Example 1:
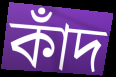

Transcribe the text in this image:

কাঁদ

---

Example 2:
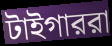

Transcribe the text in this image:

টাইগাররা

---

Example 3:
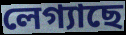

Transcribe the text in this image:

লেগ্যাছে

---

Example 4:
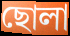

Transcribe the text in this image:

ছোলা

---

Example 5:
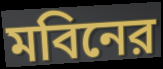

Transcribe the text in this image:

মবিনের